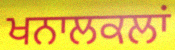
ਖਨਾਲਕਲਾਂ